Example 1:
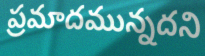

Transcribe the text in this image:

ప్రమాదమున్నదని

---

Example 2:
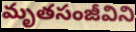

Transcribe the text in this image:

మృతసంజీవిని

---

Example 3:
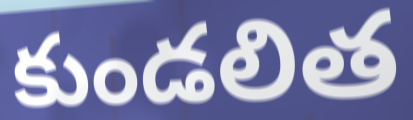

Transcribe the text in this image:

కుండలిత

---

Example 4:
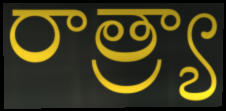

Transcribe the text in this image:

రాత్ర్యా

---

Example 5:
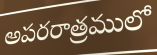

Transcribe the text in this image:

అపరరాత్రములో